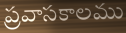
ప్రవాసకాలము